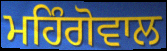
ਮਹਿੰਗੋਵਾਲ